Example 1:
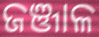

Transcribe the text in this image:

ଜଞ୍ଜାଳ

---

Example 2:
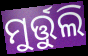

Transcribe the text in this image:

ମୁର୍ତ୍ତୁଲି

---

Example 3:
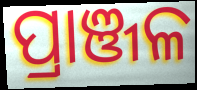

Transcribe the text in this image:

ପ୍ରାଞ୍ଜଳ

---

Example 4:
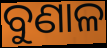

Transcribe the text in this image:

ବୁଣାଳ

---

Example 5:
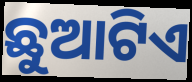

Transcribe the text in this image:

ଛୁଆଟିଏ